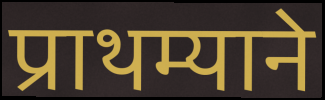
प्राथम्याने